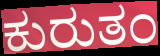
ಕುರುತಂ